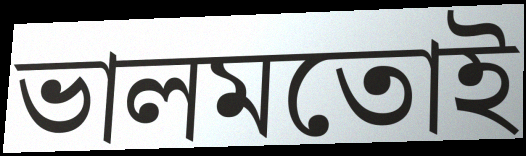
ভালমতোই